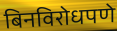
बिनविरोधपणे